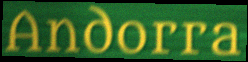
Andorra